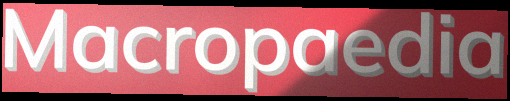
Macropaedia